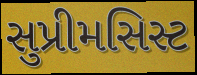
સુપ્રીમસિસ્ટ